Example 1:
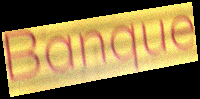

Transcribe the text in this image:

Banque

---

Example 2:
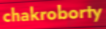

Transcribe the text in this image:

chakroborty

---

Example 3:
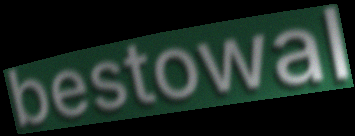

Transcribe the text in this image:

bestowal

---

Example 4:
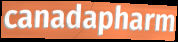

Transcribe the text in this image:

canadapharm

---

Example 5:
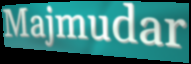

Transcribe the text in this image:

Majmudar